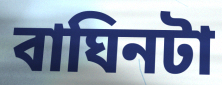
বাঘিনটা